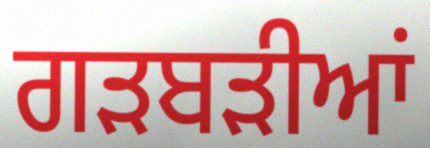
ਗੜਬੜੀਆਂ